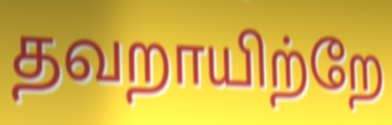
தவறாயிற்றே